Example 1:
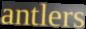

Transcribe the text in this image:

antlers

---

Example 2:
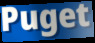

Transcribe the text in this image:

Puget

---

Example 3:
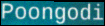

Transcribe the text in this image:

Poongodi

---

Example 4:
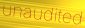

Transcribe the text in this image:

unaudited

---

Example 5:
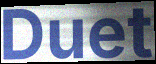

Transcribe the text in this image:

Duet